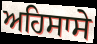
ਅਹਿਸਾਸੇ